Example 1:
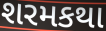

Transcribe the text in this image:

શરમકથા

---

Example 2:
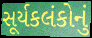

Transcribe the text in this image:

સૂર્યકલંકોનું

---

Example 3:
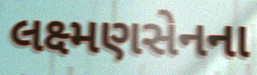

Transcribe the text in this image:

લક્ષ્મણસેનના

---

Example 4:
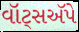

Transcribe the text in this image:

વૉટ્સઍપે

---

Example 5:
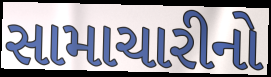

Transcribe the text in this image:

સામાચારીનો